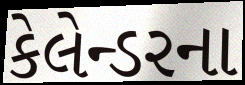
કેલેન્ડરના